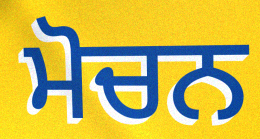
ਮੋਚਨ